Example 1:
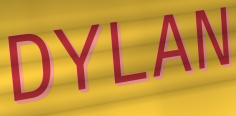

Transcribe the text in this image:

DYLAN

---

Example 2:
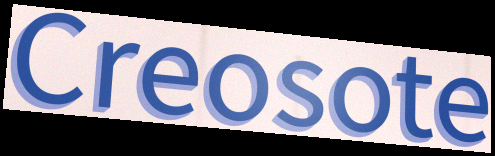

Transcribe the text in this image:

Creosote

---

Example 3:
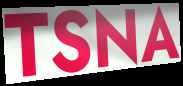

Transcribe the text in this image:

TSNA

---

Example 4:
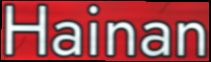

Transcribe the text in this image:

Hainan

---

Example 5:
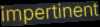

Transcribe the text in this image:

impertinent